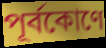
পূর্বকোণে